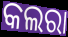
କଲରା